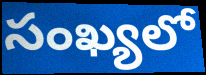
సంఖ్యలో